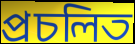
প্ৰচলিত